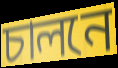
চালনে